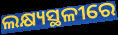
ଲକ୍ଷ୍ୟସ୍ଥଳୀରେ